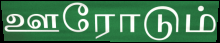
ஊரோடும்